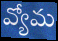
వ్యోమ